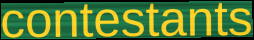
contestants